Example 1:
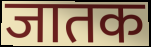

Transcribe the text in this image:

जातक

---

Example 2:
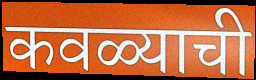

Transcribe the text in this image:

कवळ्याची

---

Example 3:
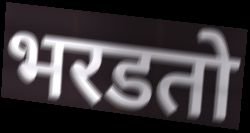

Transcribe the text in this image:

भरडतो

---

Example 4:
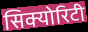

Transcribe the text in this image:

सिक्योरिटी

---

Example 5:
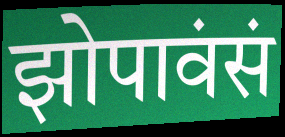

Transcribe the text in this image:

झोपावंसं